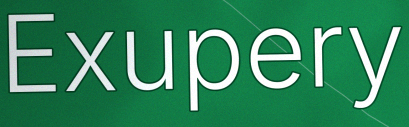
Exupery